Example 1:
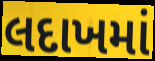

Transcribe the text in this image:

લદાખમાં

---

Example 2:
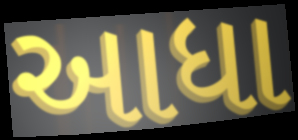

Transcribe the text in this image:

આધા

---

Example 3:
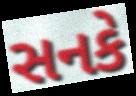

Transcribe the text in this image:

સનકે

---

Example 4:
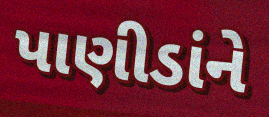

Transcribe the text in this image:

પાણીડાંને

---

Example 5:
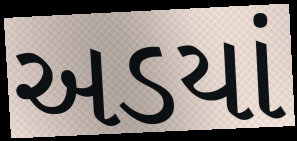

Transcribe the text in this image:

અડયાં